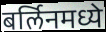
बर्लिनमध्ये